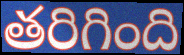
తరిగింది